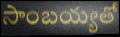
సాంబయ్యతో